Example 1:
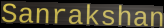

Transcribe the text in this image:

Sanrakshan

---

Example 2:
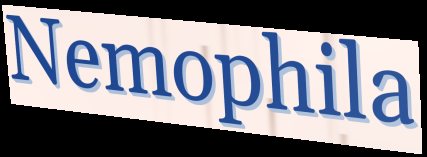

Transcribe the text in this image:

Nemophila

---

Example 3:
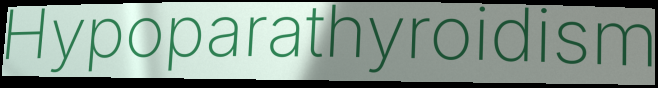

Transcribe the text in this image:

Hypoparathyroidism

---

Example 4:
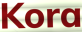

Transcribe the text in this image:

Kora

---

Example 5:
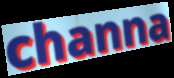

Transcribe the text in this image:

channa